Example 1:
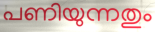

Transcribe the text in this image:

പണിയുന്നതും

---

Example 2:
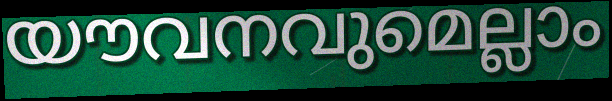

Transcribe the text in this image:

യൗവനവുമെല്ലാം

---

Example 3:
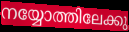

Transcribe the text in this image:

നയ്യോത്തിലേക്കു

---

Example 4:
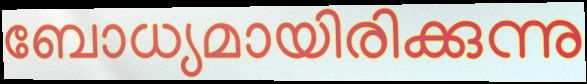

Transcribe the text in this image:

ബോധ്യമായിരിക്കുന്നു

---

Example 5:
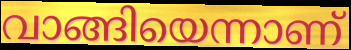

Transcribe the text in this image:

വാങ്ങിയെന്നാണ്